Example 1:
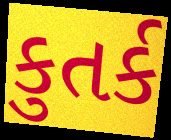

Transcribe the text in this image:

કુતર્ક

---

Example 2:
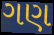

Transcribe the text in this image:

ગણ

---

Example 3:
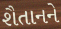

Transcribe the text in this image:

શૈતાનને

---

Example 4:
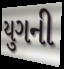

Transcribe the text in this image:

યુગની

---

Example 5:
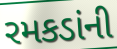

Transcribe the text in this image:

રમકડાંની